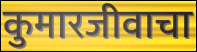
कुमारजीवाचा